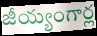
జీయ్యంగార్ల